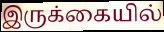
இருக்கையில்